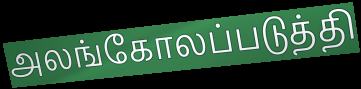
அலங்கோலப்படுத்தி